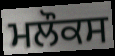
ਮਲੌਕਸ